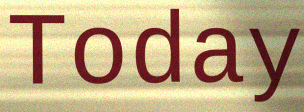
Today